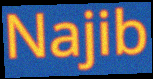
Najib